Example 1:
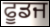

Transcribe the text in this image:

ਫੂਡਜ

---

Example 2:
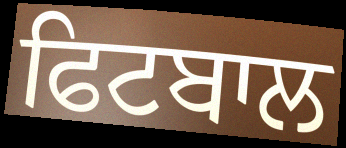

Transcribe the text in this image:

ਫਿਟਬਾਲ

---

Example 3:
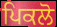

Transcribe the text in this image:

ਪਿਕਲੋ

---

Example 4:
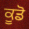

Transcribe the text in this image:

ਕੂਡੋ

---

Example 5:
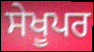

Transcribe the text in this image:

ਸੇਖੂਪਰ